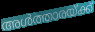
അൾത്താരയ്ക്ക്